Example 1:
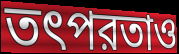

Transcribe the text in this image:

তৎপরতাও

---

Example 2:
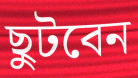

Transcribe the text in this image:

ছুটবেন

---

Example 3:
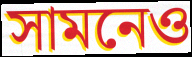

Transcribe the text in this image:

সামনেও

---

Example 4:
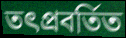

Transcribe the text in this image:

তৎপ্রবর্তিত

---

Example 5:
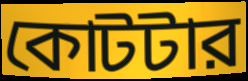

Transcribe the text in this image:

কোটটার